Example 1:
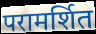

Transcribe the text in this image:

परामर्शित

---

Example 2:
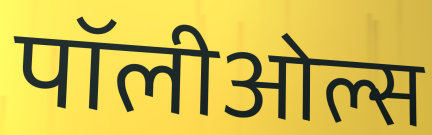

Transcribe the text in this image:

पॉलीओल्स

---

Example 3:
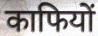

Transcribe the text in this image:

काफियों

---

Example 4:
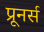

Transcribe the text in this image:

प्रूनर्स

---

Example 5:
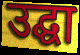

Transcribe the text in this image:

उद्घा